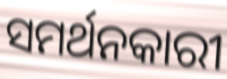
ସମର୍ଥନକାରୀ